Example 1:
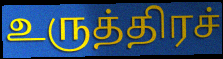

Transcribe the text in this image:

உருத்திரச்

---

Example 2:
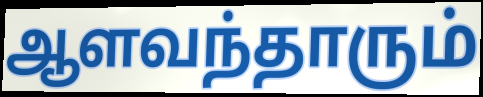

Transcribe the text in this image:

ஆளவந்தாரும்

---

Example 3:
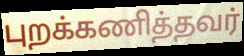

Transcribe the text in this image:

புறக்கணித்தவர்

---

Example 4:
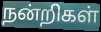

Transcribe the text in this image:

நன்றிகள்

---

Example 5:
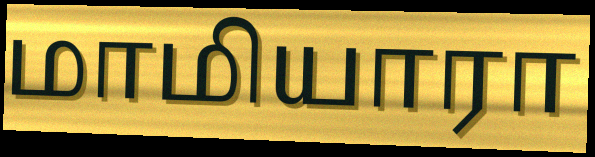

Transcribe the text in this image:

மாமியாரா